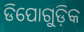
ଡିପୋଗୁଡ଼ିକ